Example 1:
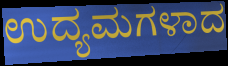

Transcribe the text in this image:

ಉದ್ಯಮಗಳಾದ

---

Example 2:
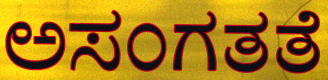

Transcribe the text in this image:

ಅಸಂಗತತೆ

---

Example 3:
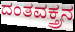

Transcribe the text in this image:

ದಂತವಕ್ತ್ರನ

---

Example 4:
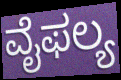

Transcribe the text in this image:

ವೈಫಲ್ಯ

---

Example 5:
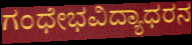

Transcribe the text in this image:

ಗಂಧೇಭವಿದ್ಯಾಧರನ